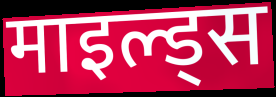
माइल्ड्स